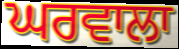
ਘਰਵਾਲਾ